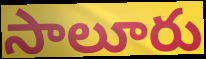
సాలూరు